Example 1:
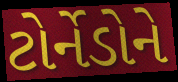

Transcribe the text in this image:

ટોર્નેડોને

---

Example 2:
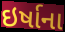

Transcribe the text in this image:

ઇર્ષાના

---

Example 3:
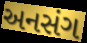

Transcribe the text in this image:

અનસંગ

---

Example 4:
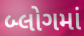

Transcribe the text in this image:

બ્લોગમાં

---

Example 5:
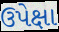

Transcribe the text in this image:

ઉપેક્ષા